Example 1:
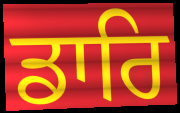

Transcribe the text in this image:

ਡਾਰਿ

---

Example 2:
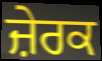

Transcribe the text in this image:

ਜ਼ੇਰਕ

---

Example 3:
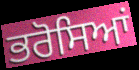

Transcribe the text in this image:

ਭਰੋਸਿਆਂ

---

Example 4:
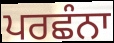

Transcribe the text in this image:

ਪਰਛੰਨਾ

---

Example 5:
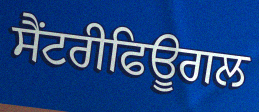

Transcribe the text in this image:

ਸੈਂਟਰੀਫਿਊਗਲ